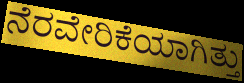
ನೆರವೇರಿಕೆಯಾಗಿತ್ತು